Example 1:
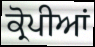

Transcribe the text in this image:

ਕ੍ਰੋਪੀਆਂ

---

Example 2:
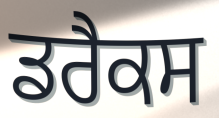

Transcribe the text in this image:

ਡਰੈਕਸ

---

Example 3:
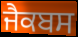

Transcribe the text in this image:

ਜੈਕਬਸ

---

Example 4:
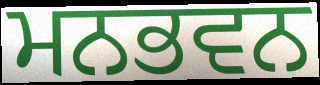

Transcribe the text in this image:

ਮਨਭਵਨ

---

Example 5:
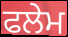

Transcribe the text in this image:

ਫਲੇਮ